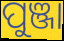
ପୁଞ୍ଜା